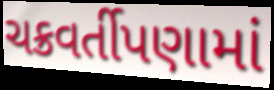
ચક્રવર્તીપણામાં